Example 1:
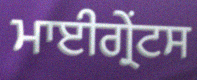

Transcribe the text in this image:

ਮਾਈਗ੍ਰੇਂਟਸ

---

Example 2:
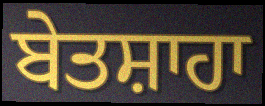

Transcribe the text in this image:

ਬੇਤਸ਼ਾਹਾ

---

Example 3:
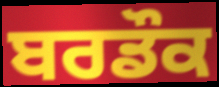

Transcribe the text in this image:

ਬਰਡੌਕ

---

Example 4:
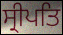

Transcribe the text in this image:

ਸ੍ਰੀਪਤਿ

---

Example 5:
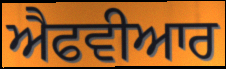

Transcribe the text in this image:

ਐਫਵੀਆਰ